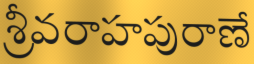
శ్రీవరాహపురాణే